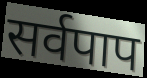
सर्वपाप